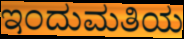
ಇಂದುಮತಿಯ